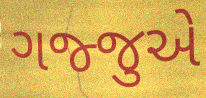
ગજ્જુએ